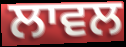
ਲਾਵਲ